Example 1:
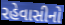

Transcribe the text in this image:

રહેવાસીનો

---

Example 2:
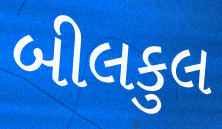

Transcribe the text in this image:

બીલકુલ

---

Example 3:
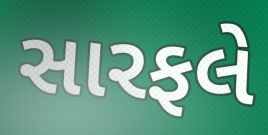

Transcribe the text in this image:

સારફલે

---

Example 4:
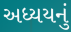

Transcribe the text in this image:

અધ્યયનું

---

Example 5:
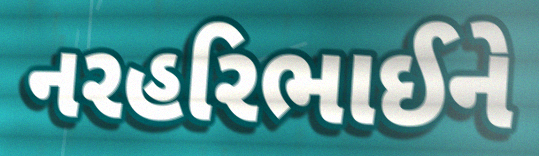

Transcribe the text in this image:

નરહરિભાઈને